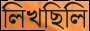
লিখছিলি